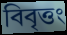
বিবৃত্তং